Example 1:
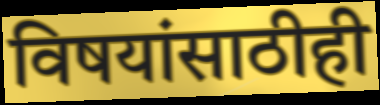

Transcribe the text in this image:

विषयांसाठीही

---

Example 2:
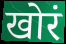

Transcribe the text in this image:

खोरं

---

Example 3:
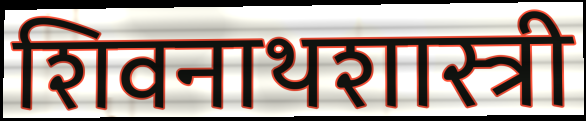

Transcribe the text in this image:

शिवनाथशास्त्री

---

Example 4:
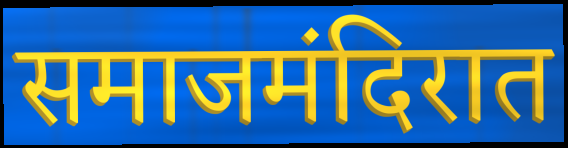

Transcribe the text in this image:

समाजमंदिरात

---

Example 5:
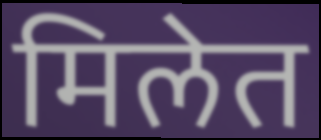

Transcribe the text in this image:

मिलेत